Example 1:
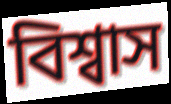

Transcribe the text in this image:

বিশ্বাস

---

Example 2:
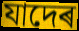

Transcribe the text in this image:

যাদেৰ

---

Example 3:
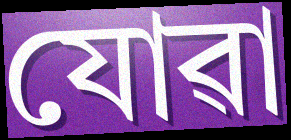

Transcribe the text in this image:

যোৱা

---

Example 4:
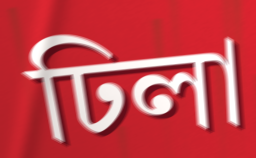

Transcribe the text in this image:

ঢিলা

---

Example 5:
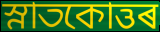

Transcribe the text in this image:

স্নাতকোত্তৰ